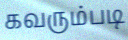
கவரும்படி